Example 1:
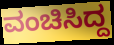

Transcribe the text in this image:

ವಂಚಿಸಿದ್ದ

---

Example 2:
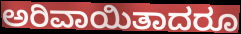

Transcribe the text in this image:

ಅರಿವಾಯಿತಾದರೂ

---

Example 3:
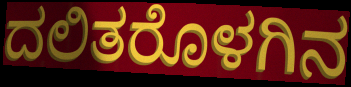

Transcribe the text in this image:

ದಲಿತರೊಳಗಿನ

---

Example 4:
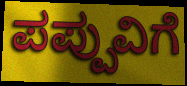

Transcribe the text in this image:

ಪಪ್ಪುವಿಗೆ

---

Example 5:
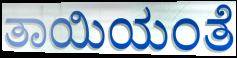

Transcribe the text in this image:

ತಾಯಿಯಂತೆ